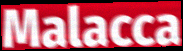
Malacca